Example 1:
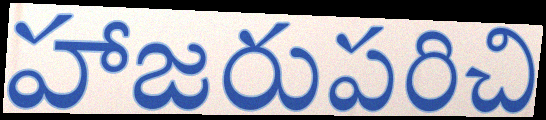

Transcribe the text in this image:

హాజరుపరిచి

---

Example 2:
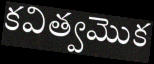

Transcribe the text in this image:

కవిత్వమొక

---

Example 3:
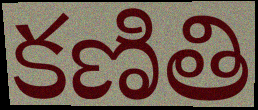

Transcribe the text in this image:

కణితి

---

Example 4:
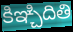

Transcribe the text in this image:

కిఞ్చిదితి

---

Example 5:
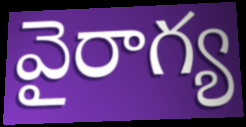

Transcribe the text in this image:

వైరాగ్య